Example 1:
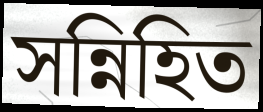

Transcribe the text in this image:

সন্নিহিত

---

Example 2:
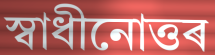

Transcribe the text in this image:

স্বাধীনোত্তৰ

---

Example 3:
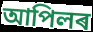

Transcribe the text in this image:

আপিলৰ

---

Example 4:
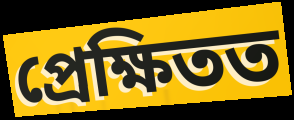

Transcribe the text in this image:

প্ৰেক্ষিতত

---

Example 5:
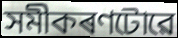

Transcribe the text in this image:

সমীকৰণটোৱে